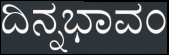
ದಿನ್ನಭಾವಂ